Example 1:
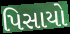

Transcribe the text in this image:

પિસાયો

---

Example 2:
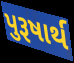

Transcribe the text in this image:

પુરૂષાર્થ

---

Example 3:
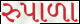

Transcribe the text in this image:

રુપાળા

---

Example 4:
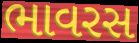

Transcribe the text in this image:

ભાવરસ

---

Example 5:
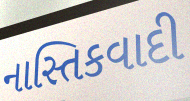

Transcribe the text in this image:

નાસ્તિકવાદી